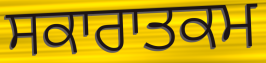
ਸਕਾਰਾਤਕਮ